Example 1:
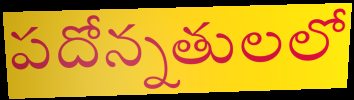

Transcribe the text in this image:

పదోన్నతులలో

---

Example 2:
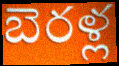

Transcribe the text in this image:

బెరళ్ల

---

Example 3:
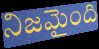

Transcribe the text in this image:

నిజమైంది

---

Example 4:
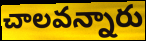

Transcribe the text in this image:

చాలవన్నారు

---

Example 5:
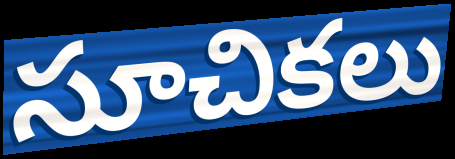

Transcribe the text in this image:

సూచికలు